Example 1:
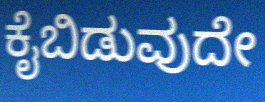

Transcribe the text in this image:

ಕೈಬಿಡುವುದೇ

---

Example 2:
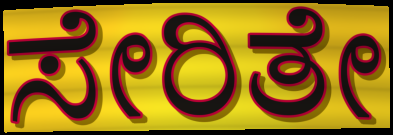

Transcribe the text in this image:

ಸೇರಿತೇ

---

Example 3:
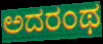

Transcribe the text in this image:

ಅದರಂಥ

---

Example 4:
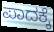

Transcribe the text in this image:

ಪಾದಕ್ಕೆ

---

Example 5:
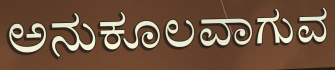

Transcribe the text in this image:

ಅನುಕೂಲವಾಗುವ